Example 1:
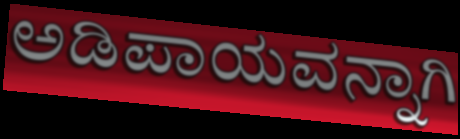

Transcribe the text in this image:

ಅಡಿಪಾಯವನ್ನಾಗಿ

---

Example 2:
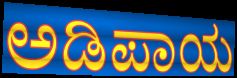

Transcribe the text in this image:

ಅಡಿಪಾಯ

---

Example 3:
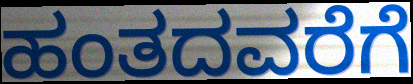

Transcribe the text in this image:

ಹಂತದವರೆಗೆ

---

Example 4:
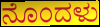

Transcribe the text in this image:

ನೊಂದಳು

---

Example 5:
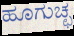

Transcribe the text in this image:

ಹೂಗುಚ್ಛ